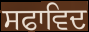
ਸਫਾਵਿਦ